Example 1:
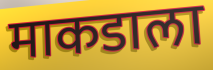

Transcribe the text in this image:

माकडाला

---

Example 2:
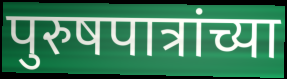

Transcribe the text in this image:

पुरुषपात्रांच्या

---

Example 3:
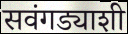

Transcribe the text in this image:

सवंगड्याशी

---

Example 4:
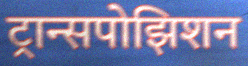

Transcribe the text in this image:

ट्रान्सपोझिशन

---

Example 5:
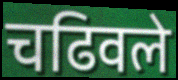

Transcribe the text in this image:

चढिवले